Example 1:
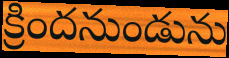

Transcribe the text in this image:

క్రిందనుండును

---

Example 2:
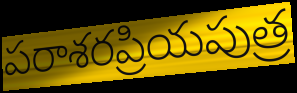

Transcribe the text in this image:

పరాశరప్రియపుత్ర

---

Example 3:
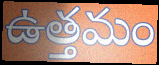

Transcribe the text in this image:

ఉత్తమం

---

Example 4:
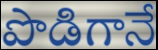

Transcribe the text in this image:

పొడిగానే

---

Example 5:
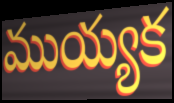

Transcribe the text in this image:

ముయ్యక